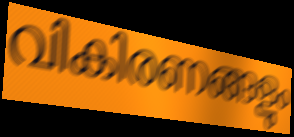
വികിരണങ്ങളും